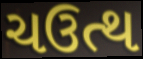
ચઉત્થ